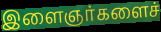
இளைஞர்களைச்